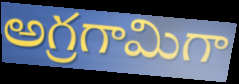
అగ్రగామిగా